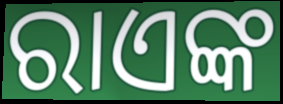
ରାଏଙ୍କ